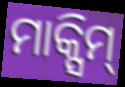
ମାକ୍ସିମ୍